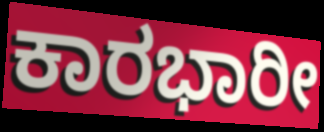
ಕಾರಭಾರೀ